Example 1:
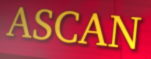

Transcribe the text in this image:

ASCAN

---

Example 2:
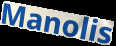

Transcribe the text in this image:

Manolis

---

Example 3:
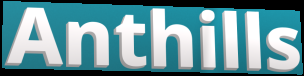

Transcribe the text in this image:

Anthills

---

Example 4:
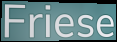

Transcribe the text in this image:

Friese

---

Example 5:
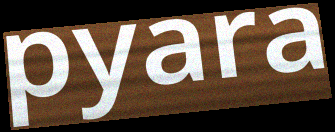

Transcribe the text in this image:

pyara